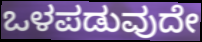
ಒಳಪಡುವುದೇ